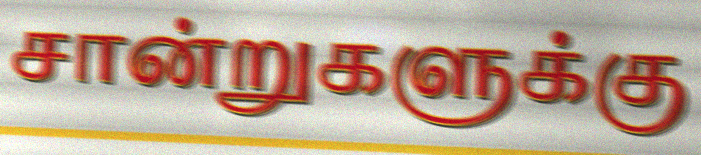
சான்றுகளுக்கு